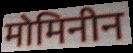
मोमिनीन